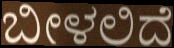
ಬೀಳಲಿದೆ